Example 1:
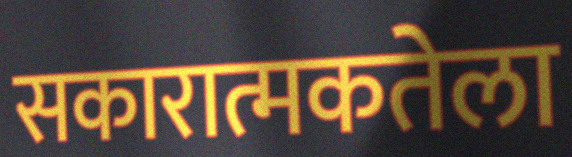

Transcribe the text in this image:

सकारात्मकतेला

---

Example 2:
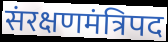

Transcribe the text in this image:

संरक्षणमंत्रिपद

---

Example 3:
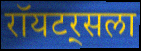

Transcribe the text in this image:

रॉयटर्सला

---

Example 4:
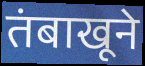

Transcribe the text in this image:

तंबाखूने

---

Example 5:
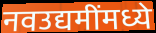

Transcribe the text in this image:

नवउद्यमींमध्ये